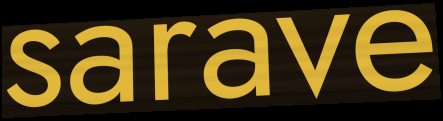
sarave